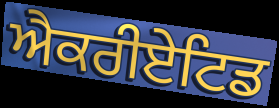
ਐਕਰੀਏਟਿਡ